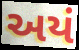
અયં